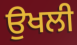
ਉਖਲੀ